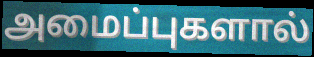
அமைப்புகளால்